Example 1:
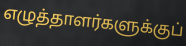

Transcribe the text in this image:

எழுத்தாளர்களுக்குப்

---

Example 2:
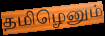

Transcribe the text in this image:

தமிழெனும்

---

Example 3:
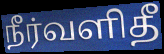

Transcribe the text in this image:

நீர்வளிதீ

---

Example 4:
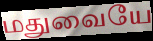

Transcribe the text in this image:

மதுவையே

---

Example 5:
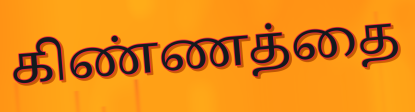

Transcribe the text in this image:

கிண்ணத்தை